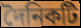
দৈনিকটি